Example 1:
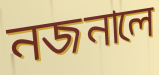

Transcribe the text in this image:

নজনালে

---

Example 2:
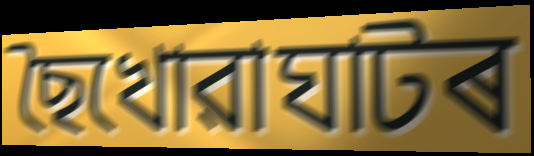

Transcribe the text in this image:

ছৈখোৱাঘাটৰ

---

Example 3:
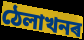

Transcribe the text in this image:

ঠেলাখনৰ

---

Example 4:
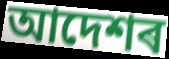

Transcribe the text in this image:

আদেশৰ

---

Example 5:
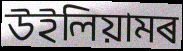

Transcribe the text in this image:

উইলিয়ামৰ